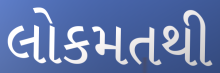
લોકમતથી